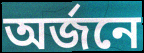
অর্জনে